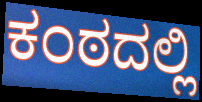
ಕಂಠದಲ್ಲಿ